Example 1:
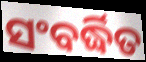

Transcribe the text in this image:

ସଂବର୍ଦ୍ଧିତ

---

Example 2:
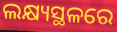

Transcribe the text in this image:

ଲକ୍ଷ୍ୟସ୍ଥଳରେ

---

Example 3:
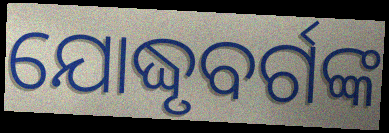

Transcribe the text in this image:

ଯୋଦ୍ଧୃବର୍ଗଙ୍କ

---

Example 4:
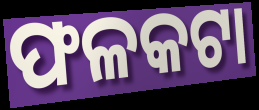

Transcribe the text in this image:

ଫଳକଟା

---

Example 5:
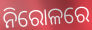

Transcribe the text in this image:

ନିରୋଳରେ